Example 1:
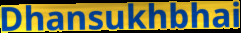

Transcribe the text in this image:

Dhansukhbhai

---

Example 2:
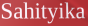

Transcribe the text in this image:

Sahityika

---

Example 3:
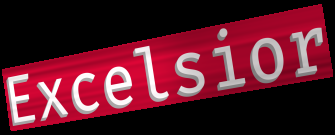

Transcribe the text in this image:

Excelsior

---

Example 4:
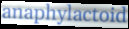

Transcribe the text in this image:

anaphylactoid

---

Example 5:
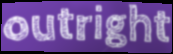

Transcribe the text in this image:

outright